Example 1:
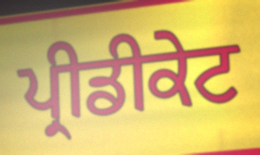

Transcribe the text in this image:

ਪ੍ਰੀਡੀਕੇਟ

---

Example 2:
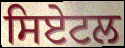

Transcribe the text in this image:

ਸਿਏਟਲ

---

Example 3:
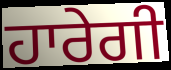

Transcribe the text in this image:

ਹਾਰੇਗੀ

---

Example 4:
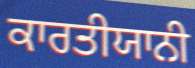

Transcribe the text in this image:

ਕਾਰਤੀਯਾਨੀ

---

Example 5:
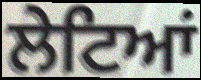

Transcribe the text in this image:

ਲੇਟਿਆਂ